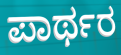
ಪಾರ್ಥರ